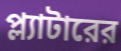
প্ল্যাটারের